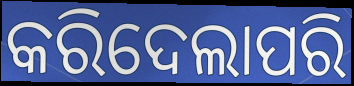
କରିଦେଲାପରି